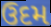
ઉદમ